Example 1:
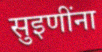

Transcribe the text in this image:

सुइणींना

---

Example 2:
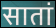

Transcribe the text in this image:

सातां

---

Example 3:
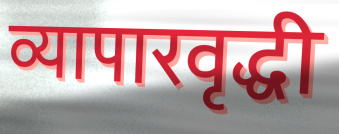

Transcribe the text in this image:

व्यापारवृद्धी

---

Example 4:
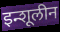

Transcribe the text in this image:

इन्शूलीन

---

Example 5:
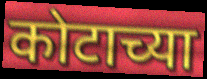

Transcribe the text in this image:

कोटाच्या